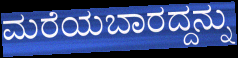
ಮರೆಯಬಾರದ್ದನ್ನು